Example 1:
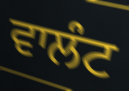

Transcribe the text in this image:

ਵਾਲੰਟ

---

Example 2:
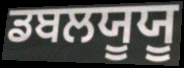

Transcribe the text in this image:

ਡਬਲਯੂਯੂ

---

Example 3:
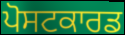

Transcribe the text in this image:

ਪੋਸਟਕਾਰਡ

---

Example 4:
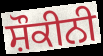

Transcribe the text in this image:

ਸ਼ੌਕੀਨੀ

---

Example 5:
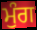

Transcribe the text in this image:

ਮੁੰਗ